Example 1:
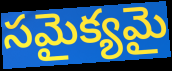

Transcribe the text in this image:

సమైక్యమై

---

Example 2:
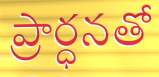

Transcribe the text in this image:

ప్రార్ధనతో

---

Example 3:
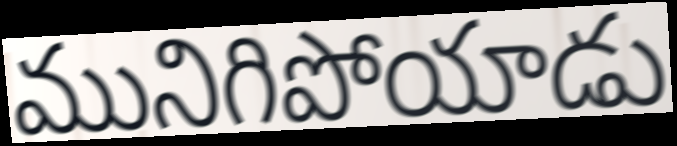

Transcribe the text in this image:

మునిగిపోయాడు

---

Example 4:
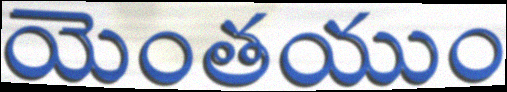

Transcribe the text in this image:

యెంతయుం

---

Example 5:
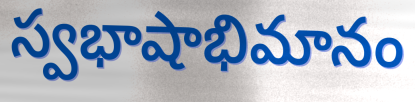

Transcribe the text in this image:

స్వభాషాభిమానం